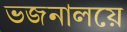
ভজনালয়ে